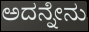
ಅದನ್ನೇನು